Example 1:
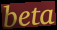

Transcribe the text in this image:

beta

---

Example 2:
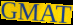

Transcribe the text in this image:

GMAT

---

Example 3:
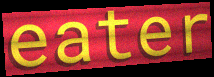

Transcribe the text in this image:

eater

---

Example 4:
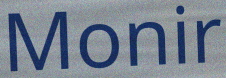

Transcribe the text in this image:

Monir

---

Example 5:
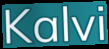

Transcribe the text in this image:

Kalvi